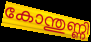
കോന്തുണ്ണി